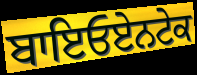
ਬਾਇਓਏਨਟੇਕ